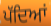
ਪੱਦਿਆਂ